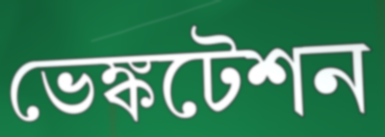
ভেঙ্কটেশন